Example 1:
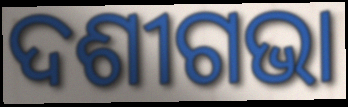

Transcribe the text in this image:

ଦଶୀଗଭା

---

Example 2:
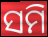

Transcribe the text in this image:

ସମି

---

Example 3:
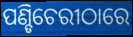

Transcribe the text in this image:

ପଣ୍ଡିଚେରୀଠାରେ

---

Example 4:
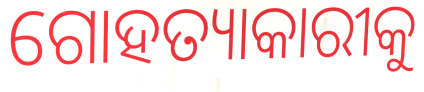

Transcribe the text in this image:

ଗୋହତ୍ୟାକାରୀକୁ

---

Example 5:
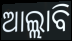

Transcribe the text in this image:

ଆଲ୍ଲାବି